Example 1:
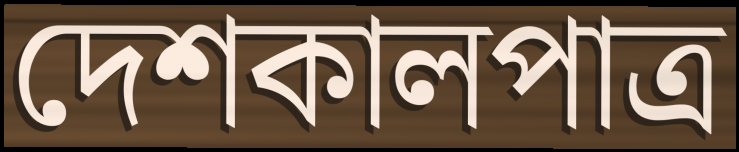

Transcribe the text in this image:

দেশকালপাত্র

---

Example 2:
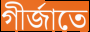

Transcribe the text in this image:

গীর্জাতে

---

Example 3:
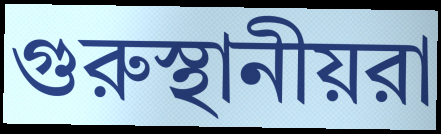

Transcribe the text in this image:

গুরুস্থানীয়রা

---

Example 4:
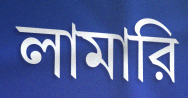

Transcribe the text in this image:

লামারি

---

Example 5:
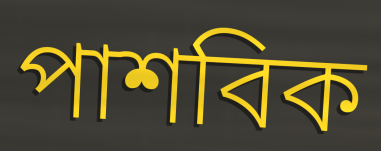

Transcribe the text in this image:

পাশবিক